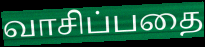
வாசிப்பதை